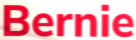
Bernie